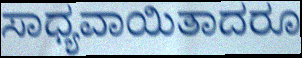
ಸಾಧ್ಯವಾಯಿತಾದರೂ